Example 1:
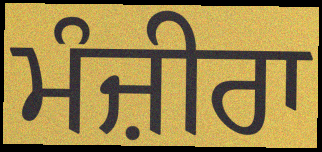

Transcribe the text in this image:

ਮੰਜ਼ੀਰਾ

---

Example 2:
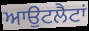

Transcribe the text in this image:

ਆਉਟਲੈਟਾਂ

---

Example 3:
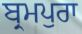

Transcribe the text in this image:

ਬ੍ਰਮਪੁਰਾ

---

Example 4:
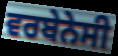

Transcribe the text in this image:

ਵਰਬੇਨੇਸੀ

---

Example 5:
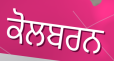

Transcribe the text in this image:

ਕੋਲਬਰਨ